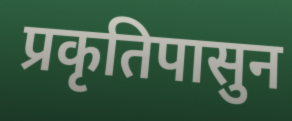
प्रकृतिपासुन